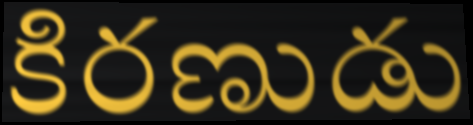
కిరణుడు